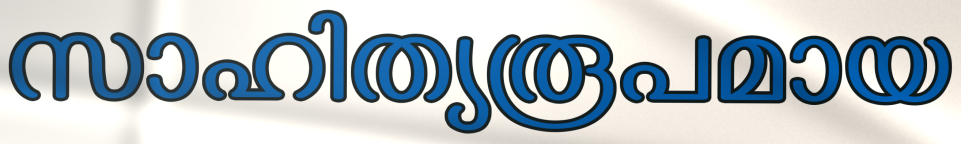
സാഹിത്യരൂപമായ